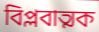
বিপ্লবাত্মক